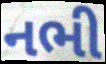
નભી